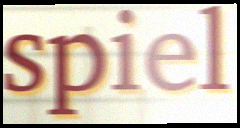
spiel